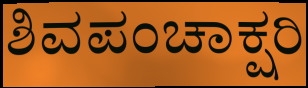
ಶಿವಪಂಚಾಕ್ಷರಿ